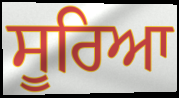
ਸੂਰਿਆ